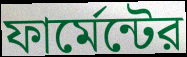
ফার্মেন্টের